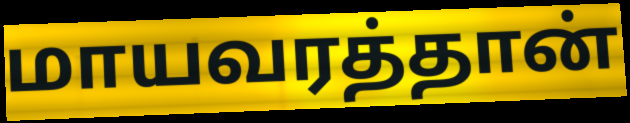
மாயவரத்தான்